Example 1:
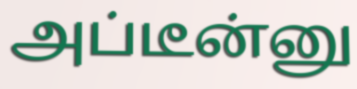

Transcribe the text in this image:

அப்டீன்னு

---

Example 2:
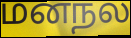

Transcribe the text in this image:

மனநல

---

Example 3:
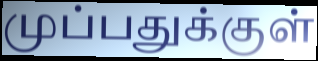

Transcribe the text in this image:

முப்பதுக்குள்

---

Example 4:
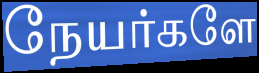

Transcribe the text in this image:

நேயர்களே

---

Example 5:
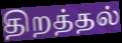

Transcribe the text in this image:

திறத்தல்